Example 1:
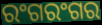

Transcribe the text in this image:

ରଂଗରଂଗର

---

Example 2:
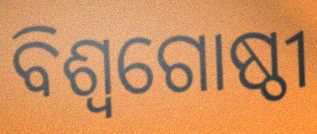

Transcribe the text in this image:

ବିଶ୍ୱଗୋଷ୍ଠୀ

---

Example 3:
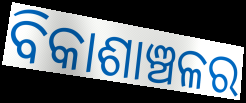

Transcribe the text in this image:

ବିକାଶାଞ୍ଚଳର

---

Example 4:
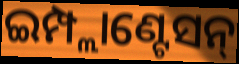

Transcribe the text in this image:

ଇମ୍ପ୍ଲାଣ୍ଟେସନ୍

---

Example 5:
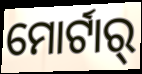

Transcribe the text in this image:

ମୋର୍ଟାର୍